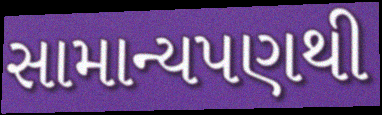
સામાન્યપણથી